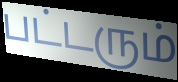
பட்டரும்